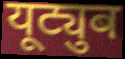
यूट्युब